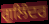
ਗੁਲਿੰਦਰ